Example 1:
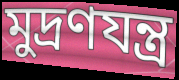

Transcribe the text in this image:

মুদ্ৰণযন্ত্ৰ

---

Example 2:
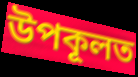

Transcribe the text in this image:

উপকূলত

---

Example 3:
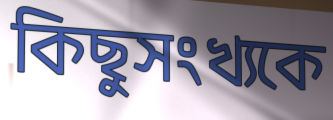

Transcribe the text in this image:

কিছুসংখ্যকে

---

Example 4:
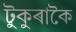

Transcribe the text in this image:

টুকুৰাকৈ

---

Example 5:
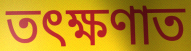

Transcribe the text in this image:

তৎক্ষণাত